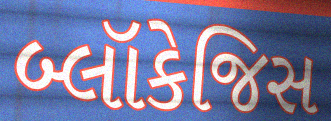
બ્લૉકેજિસ